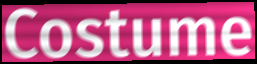
Costume